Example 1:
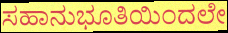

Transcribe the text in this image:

ಸಹಾನುಭೂತಿಯಿಂದಲೇ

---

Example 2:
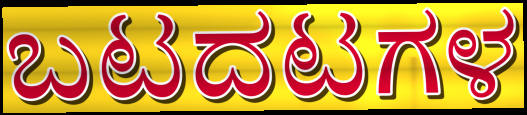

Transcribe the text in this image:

ಬಟದಟಗಳ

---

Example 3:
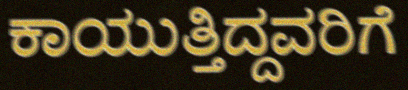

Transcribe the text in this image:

ಕಾಯುತ್ತಿದ್ದವರಿಗೆ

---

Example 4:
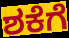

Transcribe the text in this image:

ಶಕೆಗೆ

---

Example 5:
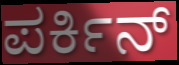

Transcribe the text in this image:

ಪರ್ಕಿನ್